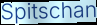
Spitschan